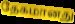
தேகமானது